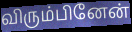
விரும்பினேன்